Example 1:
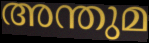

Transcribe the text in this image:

അന്തുമ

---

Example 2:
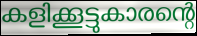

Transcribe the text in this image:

കളിക്കൂട്ടുകാരന്റെ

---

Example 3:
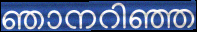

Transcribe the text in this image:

ഞാനറിഞ്ഞ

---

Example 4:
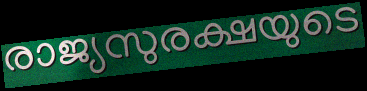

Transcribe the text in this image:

രാജ്യസുരക്ഷയുടെ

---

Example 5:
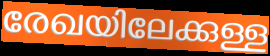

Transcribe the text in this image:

രേഖയിലേക്കുള്ള